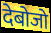
देबोजो